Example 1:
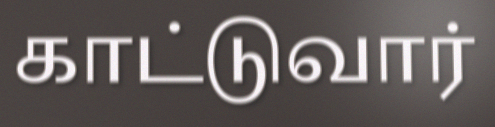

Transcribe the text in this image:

காட்டுவார்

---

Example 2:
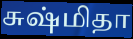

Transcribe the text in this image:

சுஷ்மிதா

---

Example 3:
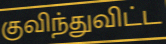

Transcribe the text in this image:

குவிந்துவிட்ட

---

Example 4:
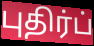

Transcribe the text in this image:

புதிர்ப்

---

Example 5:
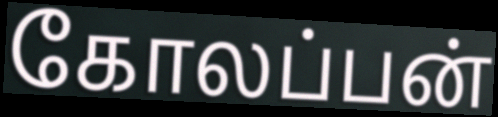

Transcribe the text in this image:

கோலப்பன்